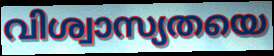
വിശ്വാസ്യതയെ